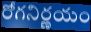
రోగనిర్ణయం